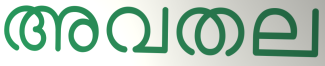
അവതല